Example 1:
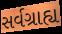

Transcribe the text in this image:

સર્વગ્રાહ્ય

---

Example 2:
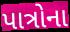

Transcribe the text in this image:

પાત્રોના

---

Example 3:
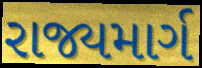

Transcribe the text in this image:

રાજ્યમાર્ગ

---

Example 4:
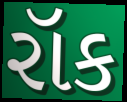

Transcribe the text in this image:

રૉક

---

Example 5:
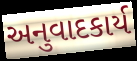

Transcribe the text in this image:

અનુવાદકાર્ય